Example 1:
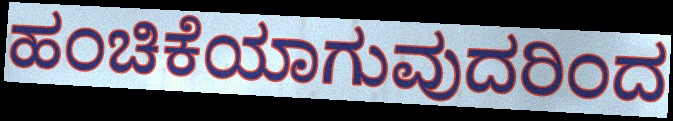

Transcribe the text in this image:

ಹಂಚಿಕೆಯಾಗುವುದರಿಂದ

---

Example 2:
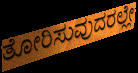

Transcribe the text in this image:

ತೋರಿಸುವುದರಲ್ಲೇ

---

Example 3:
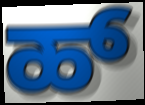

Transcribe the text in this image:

ಹ್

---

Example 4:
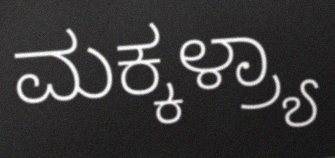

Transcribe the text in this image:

ಮಕ್ಕಳ್ರ್ಯಾ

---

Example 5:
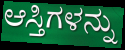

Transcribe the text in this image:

ಆಸ್ತಿಗಳನ್ನು